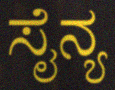
ಸೈನ್ಯ